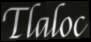
Tlaloc